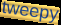
tweepy